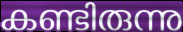
കണ്ടിരുന്നു